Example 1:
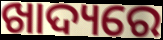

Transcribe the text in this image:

ଖାଦ୍ୟରେ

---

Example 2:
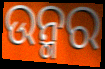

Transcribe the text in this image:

ଉନ୍ମର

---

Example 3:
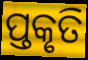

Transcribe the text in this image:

ପ୍ତକୃତି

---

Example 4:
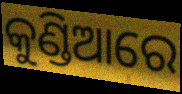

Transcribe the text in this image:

କୁଣ୍ଡିଆରେ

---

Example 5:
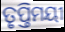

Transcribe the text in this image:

ତୃପ୍ତିମୟୀ